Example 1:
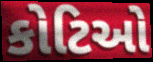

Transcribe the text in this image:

કોટિઓ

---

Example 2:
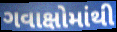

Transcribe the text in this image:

ગવાક્ષોમાંથી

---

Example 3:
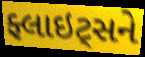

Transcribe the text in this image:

ફ્લાઇટ્સને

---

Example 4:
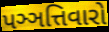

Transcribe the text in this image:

પઞ્ઞત્તિવારો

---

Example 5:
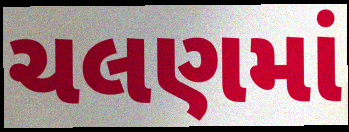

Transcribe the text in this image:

ચલણમાં